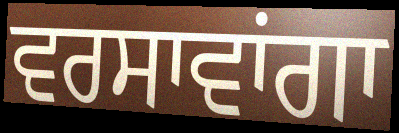
ਵਰਸਾਵਾਂਗਾ